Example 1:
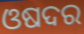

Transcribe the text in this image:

ଓଷଦର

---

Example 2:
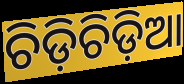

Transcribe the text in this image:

ଚିଡ଼ିଚିଡ଼ିଆ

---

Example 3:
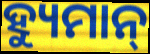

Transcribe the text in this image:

ହ୍ୟୁମାନ୍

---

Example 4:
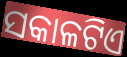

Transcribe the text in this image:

ସକାଳଟିଏ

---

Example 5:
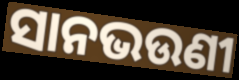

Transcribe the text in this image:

ସାନଭଉଣୀ